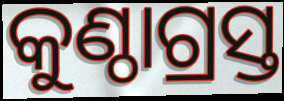
କୁଣ୍ଠାଗ୍ରସ୍ତ